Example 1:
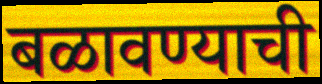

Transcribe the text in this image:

बळावण्याची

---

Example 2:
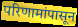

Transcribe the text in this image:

परिणामांपासून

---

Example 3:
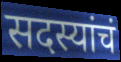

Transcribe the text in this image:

सदस्यांचं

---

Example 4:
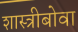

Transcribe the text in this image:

शास्त्रीबोवा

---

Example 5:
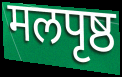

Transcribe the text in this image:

मलपृष्ठ